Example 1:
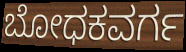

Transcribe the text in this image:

ಬೋಧಕವರ್ಗ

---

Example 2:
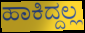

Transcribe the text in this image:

ಹಾಕಿದ್ದಲ್ಲ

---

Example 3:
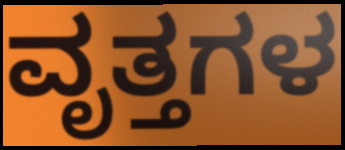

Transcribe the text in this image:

ವೃತ್ತಗಳ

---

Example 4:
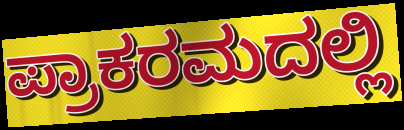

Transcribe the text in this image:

ಪ್ರಾಕರಮದಲ್ಲಿ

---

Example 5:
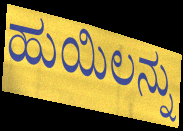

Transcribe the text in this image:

ಹುಯಿಲನ್ನು